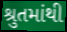
શ્રુતમાંથી